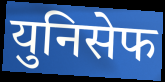
युनिसेफ